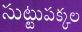
సుట్టుపక్కల